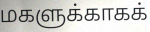
மகளுக்காகக்